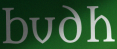
budh